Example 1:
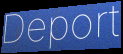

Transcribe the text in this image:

Deport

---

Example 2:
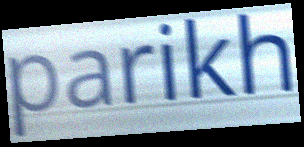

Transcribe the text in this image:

parikh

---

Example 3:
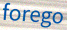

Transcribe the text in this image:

forego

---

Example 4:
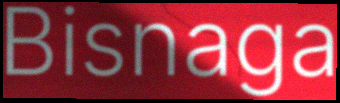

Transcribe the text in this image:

Bisnaga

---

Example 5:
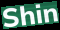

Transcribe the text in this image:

Shin